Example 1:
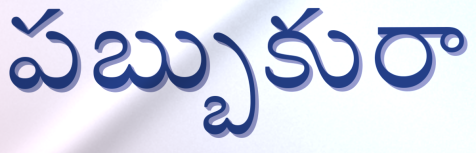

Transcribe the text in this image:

పబ్బుకురా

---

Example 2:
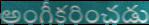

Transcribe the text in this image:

అంగీకరించడు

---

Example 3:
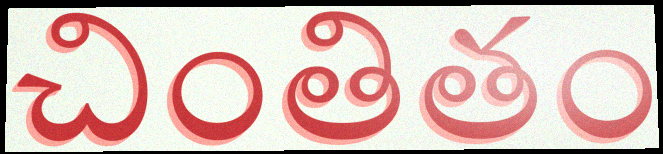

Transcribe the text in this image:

చింతితం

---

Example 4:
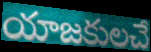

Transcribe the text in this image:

యాజకులచే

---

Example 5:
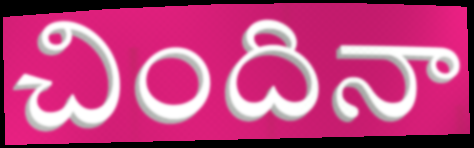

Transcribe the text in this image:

చిందినా